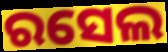
ରସେଲ